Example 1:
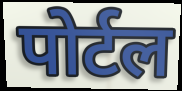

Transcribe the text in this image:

पोर्टल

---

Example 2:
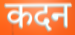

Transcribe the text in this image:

कदन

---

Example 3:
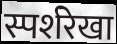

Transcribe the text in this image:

स्पर्शरेखा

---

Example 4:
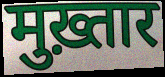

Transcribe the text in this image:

मुख़्तार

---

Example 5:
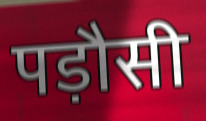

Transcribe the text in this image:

पड़ौसी